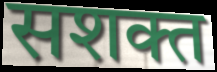
सशक्‍त